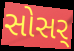
સોસર્